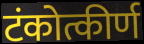
टंकोत्कीर्ण